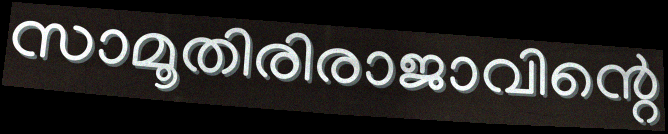
സാമൂതിരിരാജാവിന്റെ